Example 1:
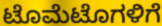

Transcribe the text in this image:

ಟೊಮೆಟೊಗಳಿಗೆ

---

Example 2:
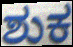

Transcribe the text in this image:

ಶುಕ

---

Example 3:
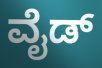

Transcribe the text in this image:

ವೈಡ್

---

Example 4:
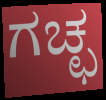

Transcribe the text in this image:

ಗಚ್ಛ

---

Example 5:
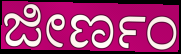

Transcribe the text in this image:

ಜೀರ್ಣಂ